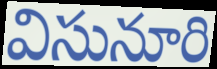
విసునూరి